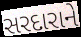
સરદારાને